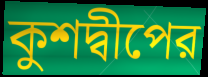
কুশদ্বীপের